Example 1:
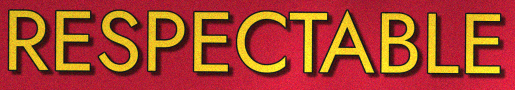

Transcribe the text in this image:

RESPECTABLE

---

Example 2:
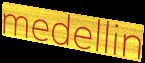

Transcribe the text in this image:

medellin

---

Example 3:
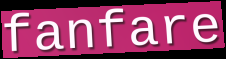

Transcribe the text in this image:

fanfare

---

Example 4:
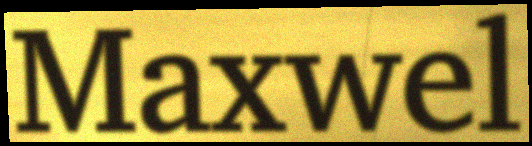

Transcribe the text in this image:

Maxwel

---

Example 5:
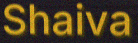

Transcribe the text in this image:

Shaiva